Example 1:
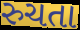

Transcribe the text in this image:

રુચતા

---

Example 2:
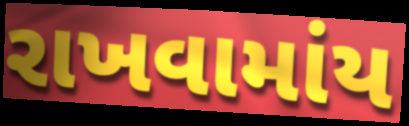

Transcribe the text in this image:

રાખવામાંય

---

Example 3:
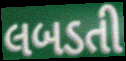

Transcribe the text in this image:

લબડતી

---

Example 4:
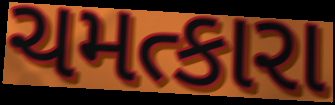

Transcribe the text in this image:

ચમત્કારા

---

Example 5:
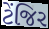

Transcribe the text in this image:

ટેંજિર